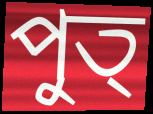
পুত্